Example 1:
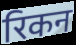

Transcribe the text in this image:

रिकन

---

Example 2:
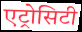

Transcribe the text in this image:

एट्रोसिटी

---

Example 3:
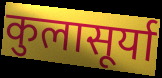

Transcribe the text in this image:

कुलासूर्या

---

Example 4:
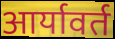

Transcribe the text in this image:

आर्यावर्त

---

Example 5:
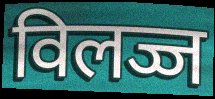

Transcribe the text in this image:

विलज्ज